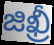
జిఖ్రీ